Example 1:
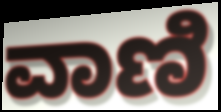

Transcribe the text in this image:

ವಾಣಿ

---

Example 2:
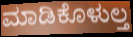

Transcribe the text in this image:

ಮಾಡಿಕೊಳುಲ್ತ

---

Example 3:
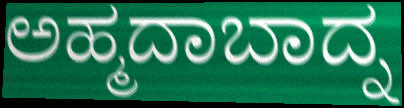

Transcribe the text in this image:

ಅಹ್ಮದಾಬಾದ್ನ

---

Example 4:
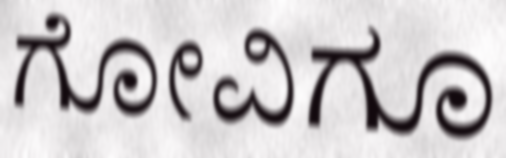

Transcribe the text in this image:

ಗೋವಿಗೂ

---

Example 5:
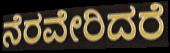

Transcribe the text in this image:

ನೆರವೇರಿದರೆ